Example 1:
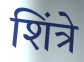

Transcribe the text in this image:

शिंत्रे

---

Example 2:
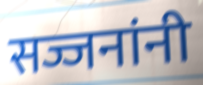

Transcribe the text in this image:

सज्जनांनी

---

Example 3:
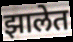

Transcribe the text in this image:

झालेत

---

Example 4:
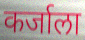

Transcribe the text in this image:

कर्जाला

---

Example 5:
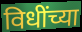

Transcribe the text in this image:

विधींच्या